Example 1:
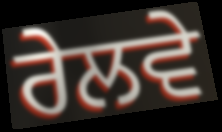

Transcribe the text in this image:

ਰੇਲਵੇ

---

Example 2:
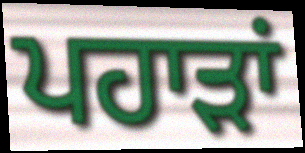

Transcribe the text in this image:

ਪਹਾੜਾਂ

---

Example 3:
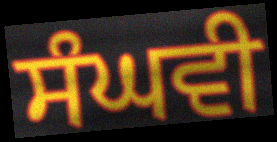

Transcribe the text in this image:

ਸੰਘਵੀ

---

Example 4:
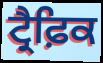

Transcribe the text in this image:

ਟ੍ਰੈਫ਼ਿਕ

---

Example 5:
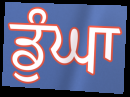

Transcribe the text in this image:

ਡੁੰਘਾ